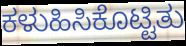
ಕಳುಹಿಸಿಕೊಟ್ಟಿತು